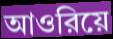
আওরিয়ে